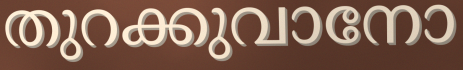
തുറക്കുവാനോ